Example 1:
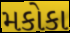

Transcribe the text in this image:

મકોકા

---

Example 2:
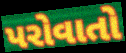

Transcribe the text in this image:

પરોવાતો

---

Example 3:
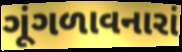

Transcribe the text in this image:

ગૂંગળાવનારાં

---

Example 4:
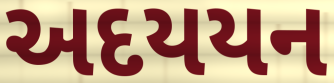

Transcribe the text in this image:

અદયયન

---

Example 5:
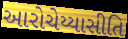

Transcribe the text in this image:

આરોચેય્યાસીતિ